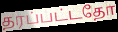
தரப்பட்டதோ